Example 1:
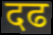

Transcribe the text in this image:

दढ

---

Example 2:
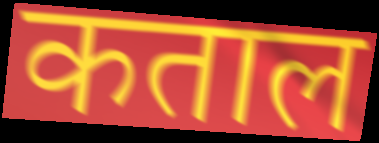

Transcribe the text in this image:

कताल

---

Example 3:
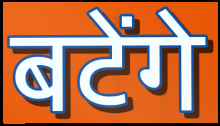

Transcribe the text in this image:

बटेंगे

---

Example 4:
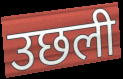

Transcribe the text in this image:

उछली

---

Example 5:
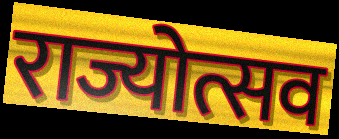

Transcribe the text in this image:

राज्योत्सव